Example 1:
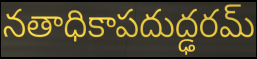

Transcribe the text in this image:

నతాధికాపదుద్ఢరమ్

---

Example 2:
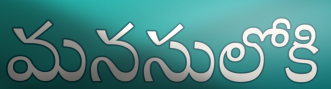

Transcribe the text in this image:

మనసులోకి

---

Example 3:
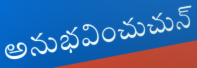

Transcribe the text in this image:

అనుభవించుచున్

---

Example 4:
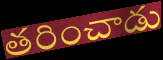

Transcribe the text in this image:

తరించాడు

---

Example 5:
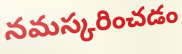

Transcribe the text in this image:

నమస్కరించడం